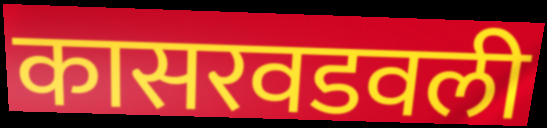
कासरवडवली